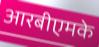
आरबीएमके